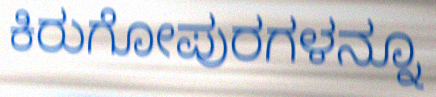
ಕಿರುಗೋಪುರಗಳನ್ನೂ